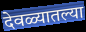
देवळ्यातल्या